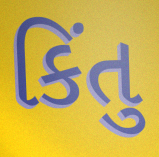
કિંતુ